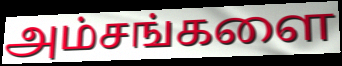
அம்சங்களை